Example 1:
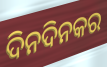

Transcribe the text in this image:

ଦିନଦିନକର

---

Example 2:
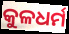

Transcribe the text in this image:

କୁଳଧର୍ମ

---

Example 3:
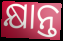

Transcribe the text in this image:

କ୍ଷାନ୍ତ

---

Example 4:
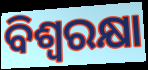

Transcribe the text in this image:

ବିଶ୍ୱରକ୍ଷା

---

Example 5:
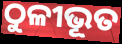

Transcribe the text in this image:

ଠୁଳୀଭୂତ